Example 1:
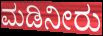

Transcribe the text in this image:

ಮಡಿನೀರು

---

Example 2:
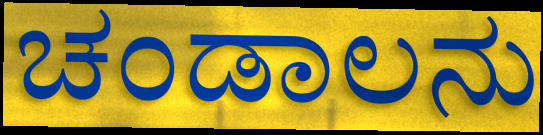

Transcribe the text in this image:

ಚಂಡಾಲನು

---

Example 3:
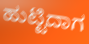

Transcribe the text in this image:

ಹುಟ್ಟಿದಾಗ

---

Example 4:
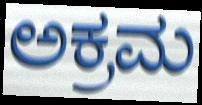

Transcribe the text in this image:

ಅಕ್ರಮ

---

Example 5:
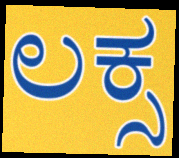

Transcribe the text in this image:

ಲಕ್ಸ